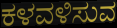
ಕಳವಳಿಸುವ